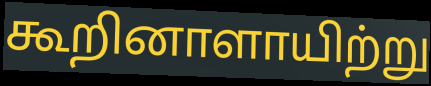
கூறினாளாயிற்று